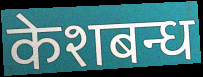
केशबन्ध